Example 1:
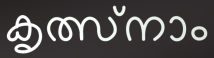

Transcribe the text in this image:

കൃത്സ്നാം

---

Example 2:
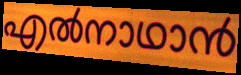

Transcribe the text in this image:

എൽനാഥാൻ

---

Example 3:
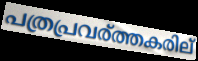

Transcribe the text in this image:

പത്രപ്രവര്ത്തകരില്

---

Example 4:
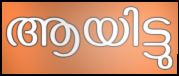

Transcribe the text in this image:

ആയിട്ടു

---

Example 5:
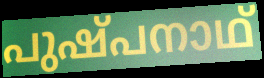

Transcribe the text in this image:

പുഷ്പനാഥ്